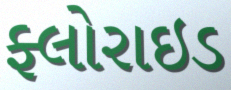
ફ્લોરાઇડ